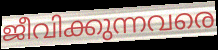
ജീവിക്കുന്നവരെ